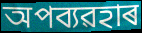
অপব্যৱহাৰ